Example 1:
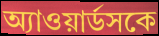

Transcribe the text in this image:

অ্যাওয়ার্ডসকে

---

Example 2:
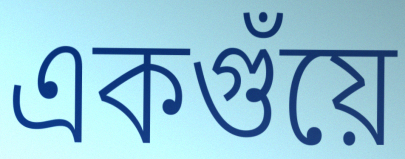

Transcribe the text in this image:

একগুঁয়ে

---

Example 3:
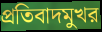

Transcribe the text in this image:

প্রতিবাদমুখর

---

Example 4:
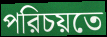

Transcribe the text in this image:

পরিচয়তে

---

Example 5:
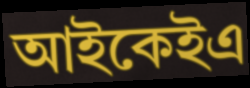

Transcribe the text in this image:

আইকেইএ